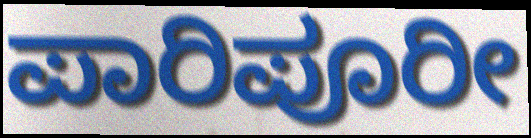
ಪಾರಿಪೂರೀ